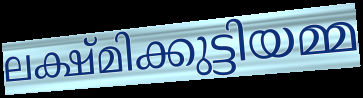
ലക്ഷ്മിക്കുട്ടിയമ്മ